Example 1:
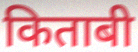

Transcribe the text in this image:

किताबी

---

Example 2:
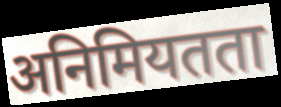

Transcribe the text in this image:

अनिमियतता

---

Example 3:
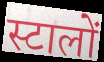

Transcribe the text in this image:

स्टालों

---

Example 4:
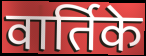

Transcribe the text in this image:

वार्तिके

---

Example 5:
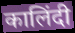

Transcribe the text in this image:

कालिंदी